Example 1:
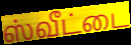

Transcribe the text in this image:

ஸ்வீட்டை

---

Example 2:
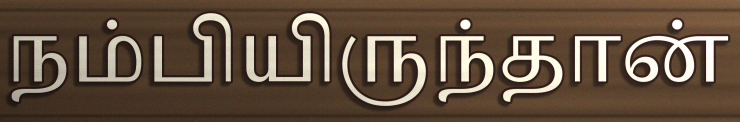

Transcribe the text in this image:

நம்பியிருந்தான்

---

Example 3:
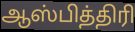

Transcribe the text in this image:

ஆஸ்பித்திரி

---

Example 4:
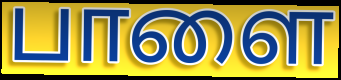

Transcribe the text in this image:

பாளை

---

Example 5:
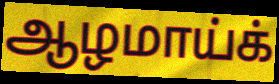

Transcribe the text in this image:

ஆழமாய்க்